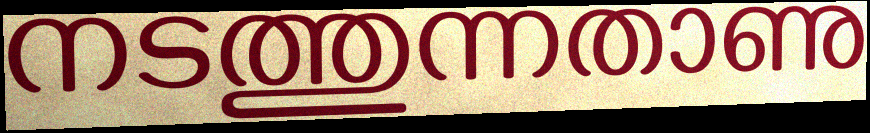
നടത്തുന്നതാണു